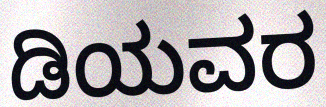
ಡಿಯವರ